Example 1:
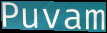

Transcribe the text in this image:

Puvam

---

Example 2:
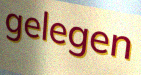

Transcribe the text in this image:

gelegen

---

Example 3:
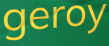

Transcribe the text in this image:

geroy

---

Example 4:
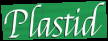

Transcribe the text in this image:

Plastid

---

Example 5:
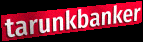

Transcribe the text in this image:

tarunkbanker